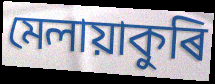
মেলায়াকুৰি